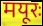
मयूरः